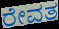
ರೇವತ